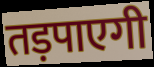
तड़पाएगी